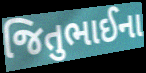
જિતુભાઈના